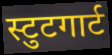
स्टुटगार्ट